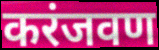
करंजवण